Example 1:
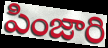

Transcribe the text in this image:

పింజారి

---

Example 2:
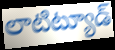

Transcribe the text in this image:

లాటిట్యూడ్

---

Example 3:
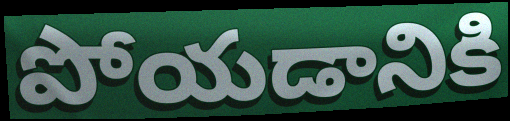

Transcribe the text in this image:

పోయడానికి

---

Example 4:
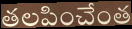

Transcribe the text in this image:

తలపించేంత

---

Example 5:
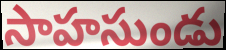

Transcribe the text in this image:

సాహసుండు